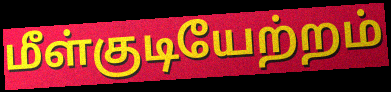
மீள்குடியேற்றம்